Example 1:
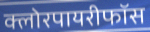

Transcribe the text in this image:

क्लोरपायरीफॉस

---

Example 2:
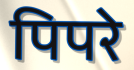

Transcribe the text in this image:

पिपरे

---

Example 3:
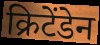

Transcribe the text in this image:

क्रिटेंडेन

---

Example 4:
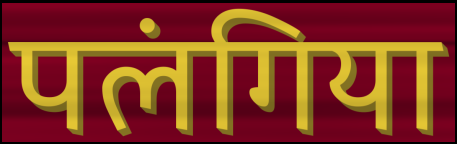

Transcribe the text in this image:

पलंगिया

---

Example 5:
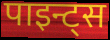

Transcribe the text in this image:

पाइन्ट्स